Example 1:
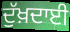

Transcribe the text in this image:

ਦੁੱਖ਼ਦਾਈ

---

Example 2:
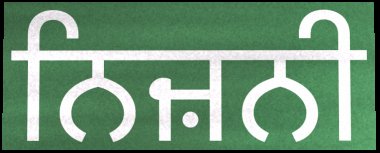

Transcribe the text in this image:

ਨਿਜ਼ਨੀ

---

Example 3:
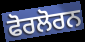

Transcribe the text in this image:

ਫੋਰਲੋਰਨ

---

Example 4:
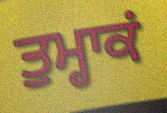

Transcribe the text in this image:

ਤੁਮ੍ਹਾਕਂ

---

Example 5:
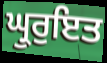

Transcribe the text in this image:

ਘ੍ਰੁਰੁਇਤ